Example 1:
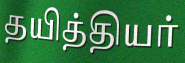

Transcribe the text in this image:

தயித்தியர்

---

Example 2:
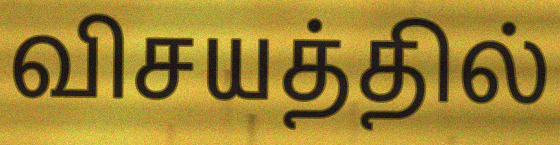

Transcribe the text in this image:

விசயத்தில்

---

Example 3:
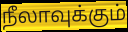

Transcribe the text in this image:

நீலாவுக்கும்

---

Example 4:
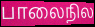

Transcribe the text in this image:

பாலைநில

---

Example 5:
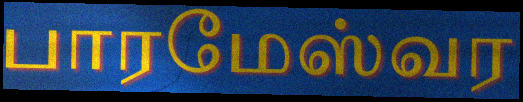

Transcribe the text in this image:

பாரமேஸ்வர